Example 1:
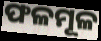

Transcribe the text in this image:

ଫଳମୂଳ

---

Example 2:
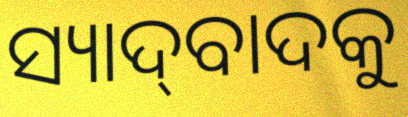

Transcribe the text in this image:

ସ୍ୟାଦ୍‌ବାଦକୁ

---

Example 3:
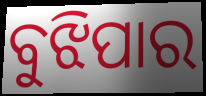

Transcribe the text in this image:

ବୁଝିପାର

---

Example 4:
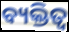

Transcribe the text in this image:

ବ୍ୟକ୍ତିତ୍ଵ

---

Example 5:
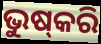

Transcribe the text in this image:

ଭୁଷ୍‌କରି